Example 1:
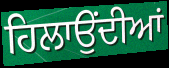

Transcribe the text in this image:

ਹਿਲਾਉਂਦੀਆਂ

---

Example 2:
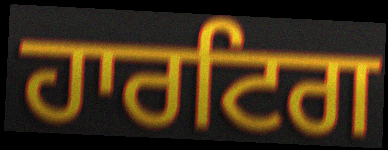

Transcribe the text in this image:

ਹਾਰਟਿਗ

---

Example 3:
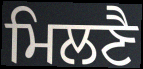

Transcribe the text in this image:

ਮਿਲਣੈ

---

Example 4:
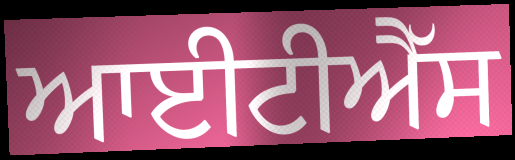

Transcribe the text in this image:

ਆਈਟੀਐੱਸ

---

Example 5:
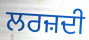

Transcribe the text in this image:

ਲਰਜ਼ਦੀ